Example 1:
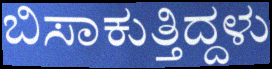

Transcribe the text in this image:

ಬಿಸಾಕುತ್ತಿದ್ದಳು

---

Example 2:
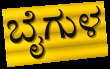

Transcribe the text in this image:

ಬೈಗುಳ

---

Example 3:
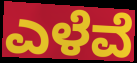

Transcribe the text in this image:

ಎಳೆವೆ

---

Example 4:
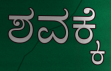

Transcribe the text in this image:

ಶವಕ್ಕೆ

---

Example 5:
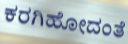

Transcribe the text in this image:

ಕರಗಿಹೋದಂತೆ